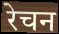
रेचन